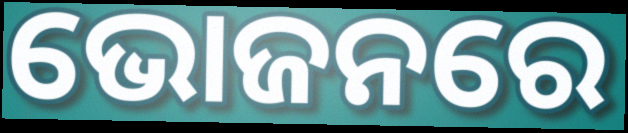
ଭୋଜନରେ